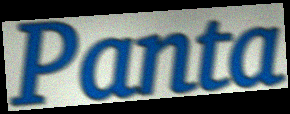
Panta